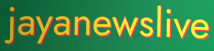
jayanewslive